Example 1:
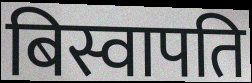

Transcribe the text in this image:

बिस्वापति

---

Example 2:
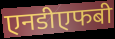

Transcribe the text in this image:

एनडीएफबी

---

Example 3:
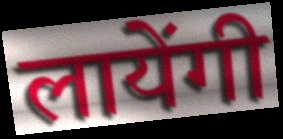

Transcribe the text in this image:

लायेंगी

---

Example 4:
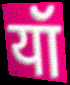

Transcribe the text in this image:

यॉ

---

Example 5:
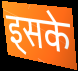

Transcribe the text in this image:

इ्सके